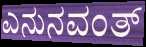
ಎನುನವಂತ್